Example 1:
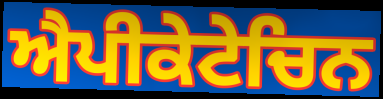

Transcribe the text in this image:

ਐਪੀਕੇਟੇਚਿਨ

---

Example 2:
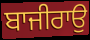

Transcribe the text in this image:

ਬਾਜੀਰਾਉ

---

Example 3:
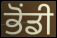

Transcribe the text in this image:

ਭੋਂਡੀ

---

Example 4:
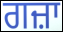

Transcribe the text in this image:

ਗਜ਼ਾ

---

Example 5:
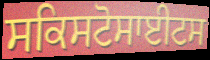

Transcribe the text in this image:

ਸਕਿਸਟੋਸਾਈਟਸ